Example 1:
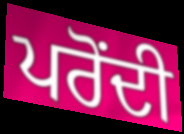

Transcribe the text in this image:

ਪਰੋਂਦੀ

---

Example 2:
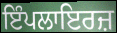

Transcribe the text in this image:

ਇੰਪਲਾਇਰਜ਼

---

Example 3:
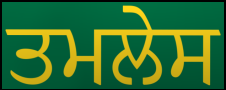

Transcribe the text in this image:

ਤਮਲੇਸ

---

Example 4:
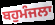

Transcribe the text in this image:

ਬਹੁਮੰਜਲਾ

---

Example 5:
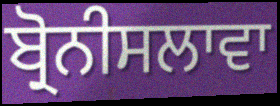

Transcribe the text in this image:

ਬ੍ਰੋਨੀਸਲਾਵਾ